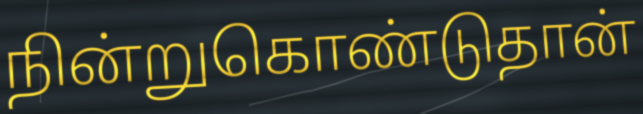
நின்றுகொண்டுதான்